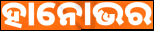
ହାନୋଭର